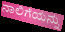
ನಾಲಿಗೆಯನ್ನು